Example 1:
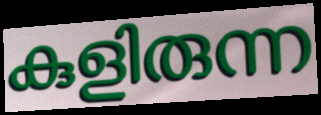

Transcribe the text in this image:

കുളിരുന്ന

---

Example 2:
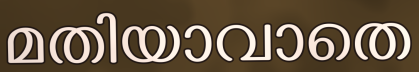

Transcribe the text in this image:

മതിയാവാതെ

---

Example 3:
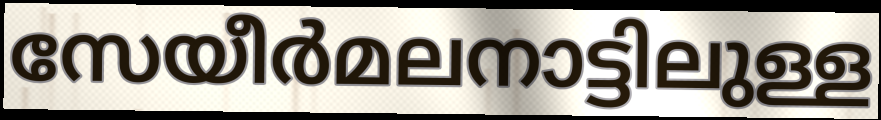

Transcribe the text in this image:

സേയീർമലനാട്ടിലുള്ള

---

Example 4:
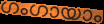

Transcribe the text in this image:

ഗംഗായാം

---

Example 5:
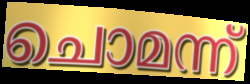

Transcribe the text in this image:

ചൊമന്ന്